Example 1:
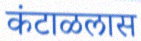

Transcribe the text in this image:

कंटाळलास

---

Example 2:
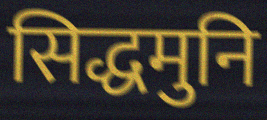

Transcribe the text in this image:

सिद्धमुनि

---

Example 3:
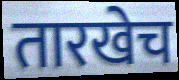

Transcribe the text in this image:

तारखेच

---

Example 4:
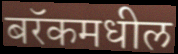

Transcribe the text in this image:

बरॅकमधील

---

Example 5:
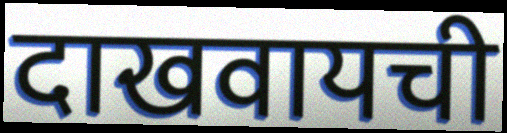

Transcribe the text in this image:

दाखवायची